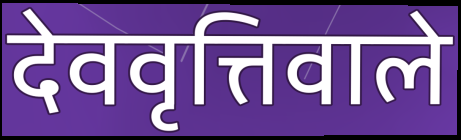
देववृत्तिवाले